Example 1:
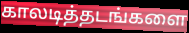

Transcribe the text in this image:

காலடித்தடங்களை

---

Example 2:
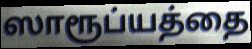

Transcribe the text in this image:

ஸாரூப்யத்தை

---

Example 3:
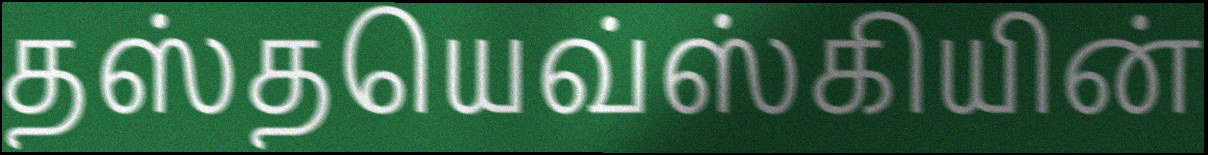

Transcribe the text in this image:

தஸ்தயெவ்ஸ்கியின்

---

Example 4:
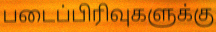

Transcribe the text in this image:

படைப்பிரிவுகளுக்கு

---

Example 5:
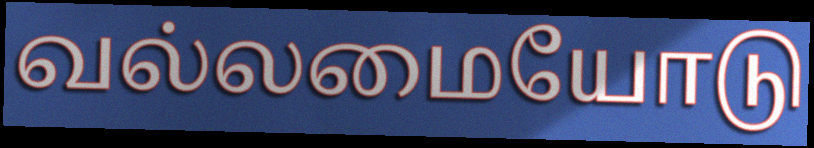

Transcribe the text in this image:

வல்லமையோடு